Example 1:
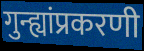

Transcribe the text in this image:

गुन्ह्यांप्रकरणी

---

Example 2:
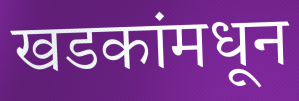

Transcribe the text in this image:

खडकांमधून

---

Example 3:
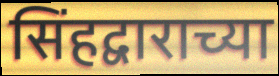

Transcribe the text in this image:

सिंहद्वाराच्या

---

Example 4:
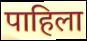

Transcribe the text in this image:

पाहिला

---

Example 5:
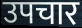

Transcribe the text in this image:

उपचार